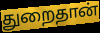
துறைதான்